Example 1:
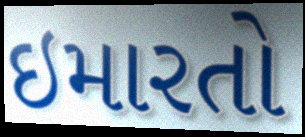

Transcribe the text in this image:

ઇમારતો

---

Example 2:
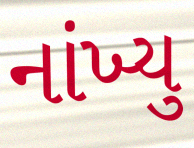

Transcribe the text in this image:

નાંખ્યુ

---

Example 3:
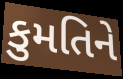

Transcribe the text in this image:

કુમતિને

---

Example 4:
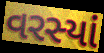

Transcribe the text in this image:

વરસ્યાં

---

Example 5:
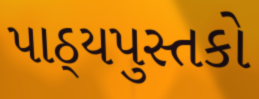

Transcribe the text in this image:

પાઠ્યપુસ્તકો